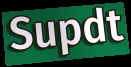
Supdt